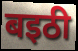
बइठी